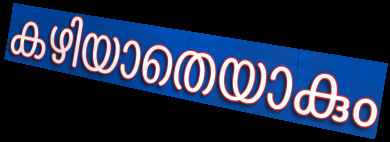
കഴിയാതെയാകും